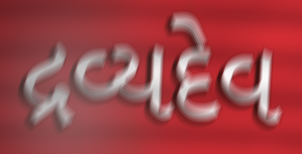
દ્રવ્યદેવ